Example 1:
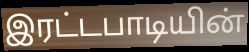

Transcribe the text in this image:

இரட்டபாடியின்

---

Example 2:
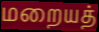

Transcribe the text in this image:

மறையத்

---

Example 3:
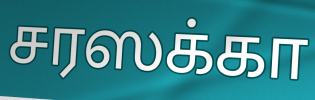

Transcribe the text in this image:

சரஸக்கா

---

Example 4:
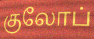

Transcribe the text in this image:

குலோப்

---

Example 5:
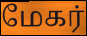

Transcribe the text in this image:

மேகர்